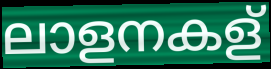
ലാളനകള്